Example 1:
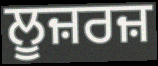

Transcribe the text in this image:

ਲੂਜ਼ਰਜ਼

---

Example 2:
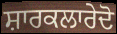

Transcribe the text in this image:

ਸ਼ਾਰਕਲਾਰੇਦੋ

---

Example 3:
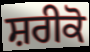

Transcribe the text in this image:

ਸ਼ਰੀਕੋ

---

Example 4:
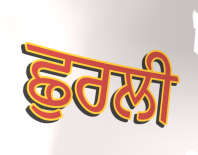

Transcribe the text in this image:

ਛੁਰਲੀ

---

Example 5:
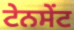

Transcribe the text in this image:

ਟੇਨਸੇਂਟ